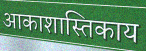
आकाशास्तिकाय